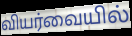
வியர்வையில்